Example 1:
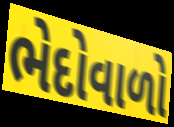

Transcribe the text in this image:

ભેદોવાળો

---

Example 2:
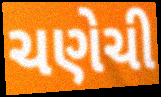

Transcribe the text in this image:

ચણેચી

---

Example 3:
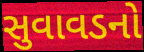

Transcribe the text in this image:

સુવાવડનો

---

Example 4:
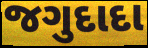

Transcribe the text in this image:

જગુદાદા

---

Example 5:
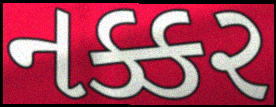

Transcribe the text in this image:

નક્કર